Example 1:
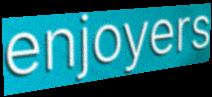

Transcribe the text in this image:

enjoyers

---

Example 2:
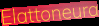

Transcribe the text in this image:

Elattoneura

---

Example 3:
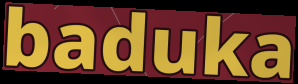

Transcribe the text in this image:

baduka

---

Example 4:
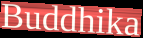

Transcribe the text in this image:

Buddhika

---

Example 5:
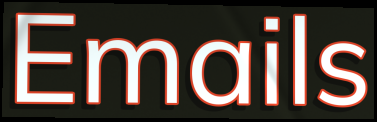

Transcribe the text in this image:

Emails